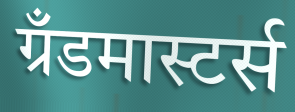
ग्रँडमास्टर्स